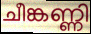
ചീങ്കണ്ണി